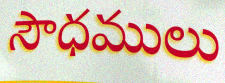
సౌధములు